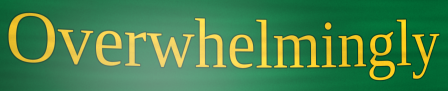
Overwhelmingly